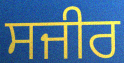
ਸਜੀਰ